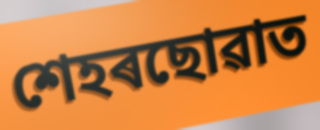
শেহৰছোৱাত